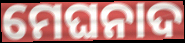
ମେଘନାଦ